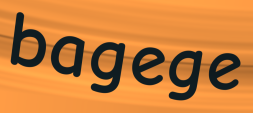
bagege